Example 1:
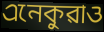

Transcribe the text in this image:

এনেকুৱাও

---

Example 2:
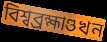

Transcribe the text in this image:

বিশ্বব্ৰহ্মাণ্ডখন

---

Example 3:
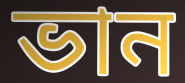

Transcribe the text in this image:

ভান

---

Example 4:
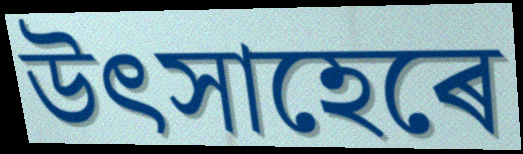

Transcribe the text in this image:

উৎসাহেৰে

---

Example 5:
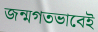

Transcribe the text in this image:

জন্মগতভাবেই